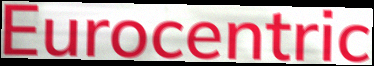
Eurocentric